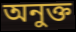
অনুক্ত